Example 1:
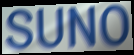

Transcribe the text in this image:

SUNO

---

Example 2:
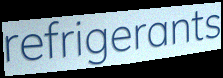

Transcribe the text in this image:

refrigerants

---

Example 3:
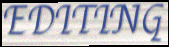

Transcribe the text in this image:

EDITING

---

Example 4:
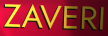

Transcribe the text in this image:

ZAVERI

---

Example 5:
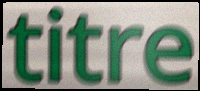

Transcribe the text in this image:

titre